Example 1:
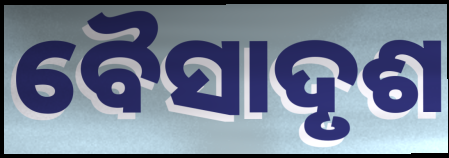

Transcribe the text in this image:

ବୈସାଦୃଶ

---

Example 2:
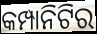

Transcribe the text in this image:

କମ୍ପାନିଟିର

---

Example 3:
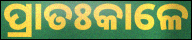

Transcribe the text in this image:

ପ୍ରାତଃକାଳେ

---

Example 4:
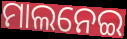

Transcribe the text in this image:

ମାଲନେଇ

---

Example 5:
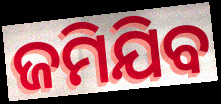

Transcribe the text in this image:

ଜମିଯିବ